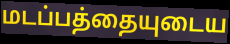
மடப்பத்தையுடைய